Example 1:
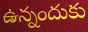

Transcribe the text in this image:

ఉన్నందుకు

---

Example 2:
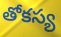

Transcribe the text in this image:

తోకస్య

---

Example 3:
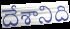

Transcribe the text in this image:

దేశానిది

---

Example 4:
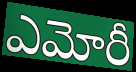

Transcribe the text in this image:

ఎమోరీ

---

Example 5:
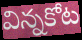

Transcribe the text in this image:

విన్నకోట